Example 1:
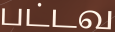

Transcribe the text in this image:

பட்டவ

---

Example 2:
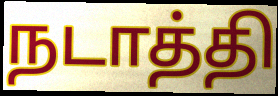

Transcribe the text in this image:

நடாத்தி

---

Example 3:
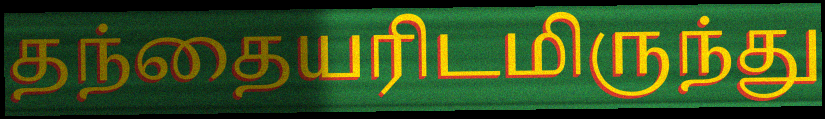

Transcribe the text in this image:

தந்தையரிடமிருந்து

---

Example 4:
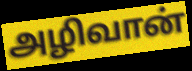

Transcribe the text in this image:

அழிவான்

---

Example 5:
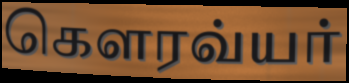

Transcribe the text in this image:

கௌரவ்யர்